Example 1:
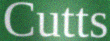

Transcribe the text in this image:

Cutts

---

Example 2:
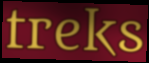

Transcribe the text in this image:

treks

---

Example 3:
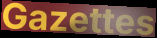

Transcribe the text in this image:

Gazettes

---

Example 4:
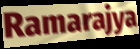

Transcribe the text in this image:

Ramarajya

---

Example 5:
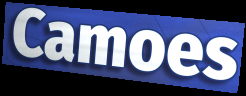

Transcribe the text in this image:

Camoes